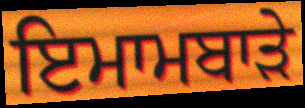
ਇਮਾਮਬਾੜੇ